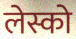
लेस्को